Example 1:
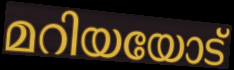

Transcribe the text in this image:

മറിയയോട്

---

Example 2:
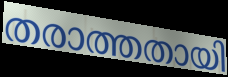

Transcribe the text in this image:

തരാത്തതായി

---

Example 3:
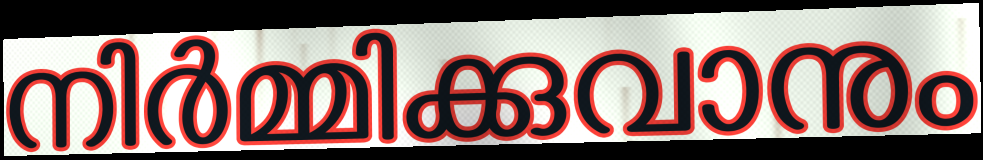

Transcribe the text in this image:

നിർമ്മിക്കുവാനും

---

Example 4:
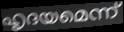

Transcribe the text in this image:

ഹൃദയമെന്ന്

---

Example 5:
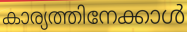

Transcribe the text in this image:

കാര്യത്തിനേക്കാൾ